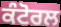
ਕੰਟੋਰਲ